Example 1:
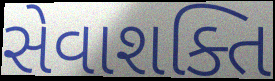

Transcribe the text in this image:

સેવાશક્તિ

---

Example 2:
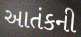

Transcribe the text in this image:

આતંકની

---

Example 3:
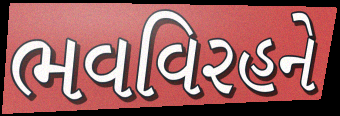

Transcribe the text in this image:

ભવવિરહને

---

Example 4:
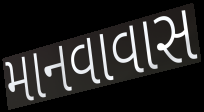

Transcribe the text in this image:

માનવાવાસ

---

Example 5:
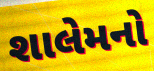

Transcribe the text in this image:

શાલેમનો